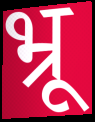
भ्रू